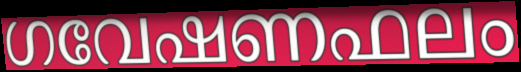
ഗവേഷണഫലം